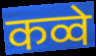
कव्वे